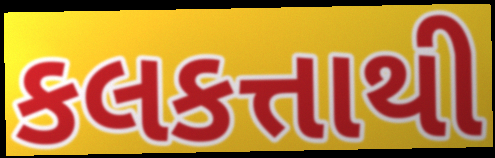
કલકત્તાથી